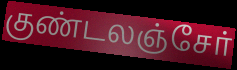
குண்டலஞ்சேர்